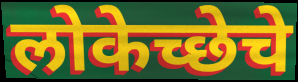
लोकेच्छेचे